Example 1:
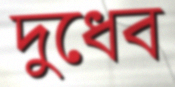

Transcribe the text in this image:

দুধেব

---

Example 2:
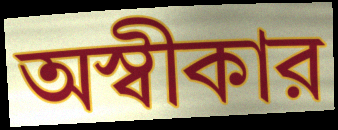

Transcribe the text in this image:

অস্বীকার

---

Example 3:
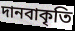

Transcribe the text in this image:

দানবাকৃতি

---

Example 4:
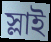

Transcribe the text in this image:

স্লাই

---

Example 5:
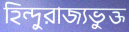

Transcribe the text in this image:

হিন্দুরাজ্যভুক্ত